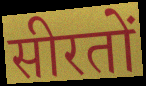
सीरतों